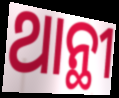
ଥାନ୍ଥୀ